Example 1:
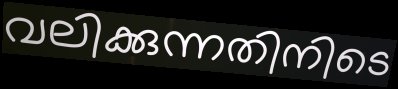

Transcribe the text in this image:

വലിക്കുന്നതിനിടെ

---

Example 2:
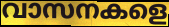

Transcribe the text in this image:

വാസനകളെ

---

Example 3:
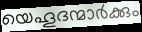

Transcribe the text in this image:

യെഹൂദന്മാർക്കും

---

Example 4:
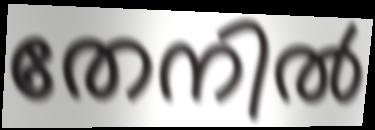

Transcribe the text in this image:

തേനിൽ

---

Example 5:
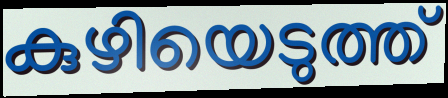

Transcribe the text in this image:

കുഴിയെടുത്ത്